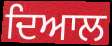
ਦਿਆਲ